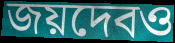
জয়দেবও